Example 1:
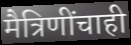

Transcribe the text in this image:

मैत्रिणींचाही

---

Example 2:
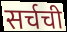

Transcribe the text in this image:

सर्चची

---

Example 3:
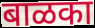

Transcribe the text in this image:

बाळका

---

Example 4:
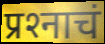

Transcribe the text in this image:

प्रश्नाचं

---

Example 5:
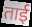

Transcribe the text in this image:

ताई